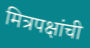
मित्रपक्षांची